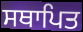
ਸਥਾਪਿਤ